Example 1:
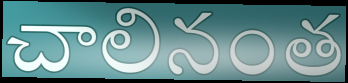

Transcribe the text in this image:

చాలినంత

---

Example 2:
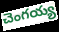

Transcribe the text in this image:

చెంగయ్య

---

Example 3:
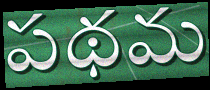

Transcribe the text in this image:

పథమ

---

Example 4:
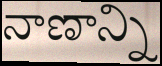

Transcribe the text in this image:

నాణాన్ని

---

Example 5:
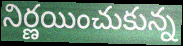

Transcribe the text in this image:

నిర్ణయించుకున్న